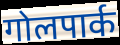
गोलपार्क